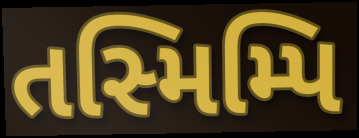
તસ્મિમ્પિ